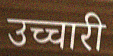
उच्चारी